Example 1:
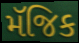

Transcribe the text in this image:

મૅજિક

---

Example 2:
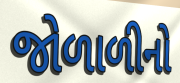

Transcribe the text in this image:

જોળાળીનો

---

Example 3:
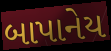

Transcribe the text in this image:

બાપાનેય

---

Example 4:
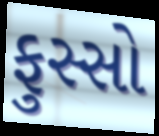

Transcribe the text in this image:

ફુસ્સો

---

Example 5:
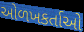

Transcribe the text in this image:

ઓળખકર્તાઓ